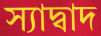
স্যাদ্বাদ